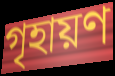
গৃহায়ণ